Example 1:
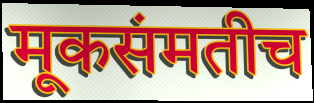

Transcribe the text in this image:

मूकसंमतीच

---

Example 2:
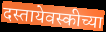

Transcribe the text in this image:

दस्तायेवस्कीच्या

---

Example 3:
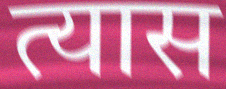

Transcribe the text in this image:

त्‍यास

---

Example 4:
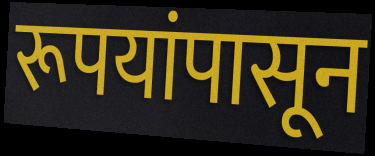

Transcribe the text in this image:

रूपयांपासून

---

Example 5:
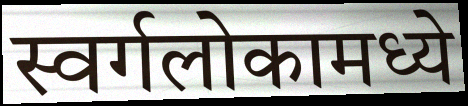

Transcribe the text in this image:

स्वर्गलोकामध्ये